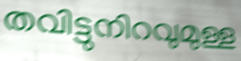
തവിട്ടുനിറവുമുള്ള